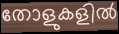
തോളുകളിൽ